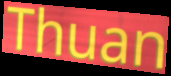
Thuan